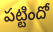
పట్టిందో